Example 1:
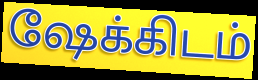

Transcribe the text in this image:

ஷேக்கிடம்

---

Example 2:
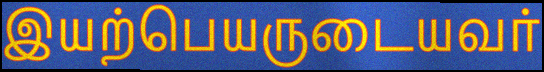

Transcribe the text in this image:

இயற்பெயருடையவர்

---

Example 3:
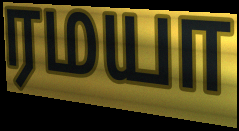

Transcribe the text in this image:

ரமயா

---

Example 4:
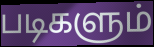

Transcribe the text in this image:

படிகளும்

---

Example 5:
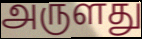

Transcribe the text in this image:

அருளது